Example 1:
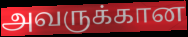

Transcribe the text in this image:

அவருக்கான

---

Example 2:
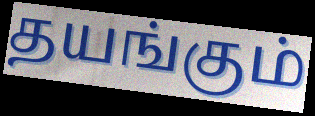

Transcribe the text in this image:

தயங்கும்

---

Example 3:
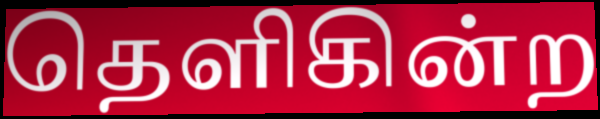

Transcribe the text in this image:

தெளிகின்ற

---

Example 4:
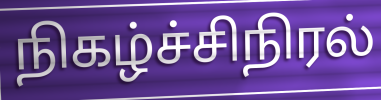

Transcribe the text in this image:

நிகழ்ச்சிநிரல்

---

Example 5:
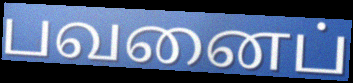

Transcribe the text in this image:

பவனைப்